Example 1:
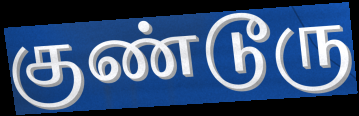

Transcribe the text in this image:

குண்டூரு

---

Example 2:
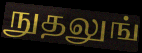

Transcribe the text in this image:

நுதலுங்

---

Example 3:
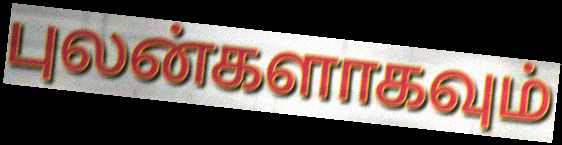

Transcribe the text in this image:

புலன்களாகவும்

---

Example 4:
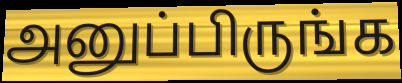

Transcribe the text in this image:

அனுப்பிருங்க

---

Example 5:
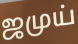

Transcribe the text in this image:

ஜமுய்